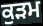
ਕੁੜਮ